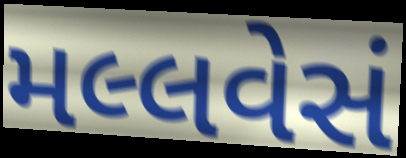
મલ્લવેસં